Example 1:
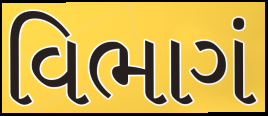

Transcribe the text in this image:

વિભાગં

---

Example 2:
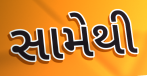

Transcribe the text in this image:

સામેથી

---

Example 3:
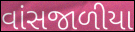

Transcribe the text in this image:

વાંસજાળીયા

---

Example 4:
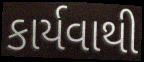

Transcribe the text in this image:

કાર્યવાથી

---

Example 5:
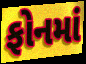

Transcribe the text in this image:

ફોનમાં